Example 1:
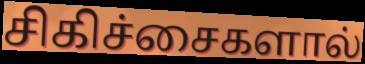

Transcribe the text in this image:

சிகிச்சைகளால்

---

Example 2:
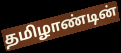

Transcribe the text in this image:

தமிழாண்டின்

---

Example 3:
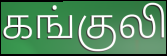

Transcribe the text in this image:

கங்குலி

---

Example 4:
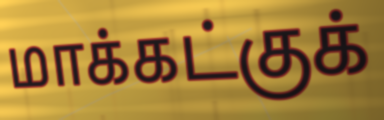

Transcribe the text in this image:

மாக்கட்குக்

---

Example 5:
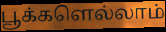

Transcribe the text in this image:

பூக்களெல்லாம்